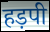
हड़पी